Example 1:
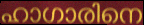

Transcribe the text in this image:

ഹാഗാരിനെ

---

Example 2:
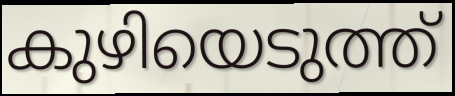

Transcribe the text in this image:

കുഴിയെടുത്ത്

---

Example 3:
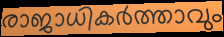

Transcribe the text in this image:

രാജാധികർത്താവും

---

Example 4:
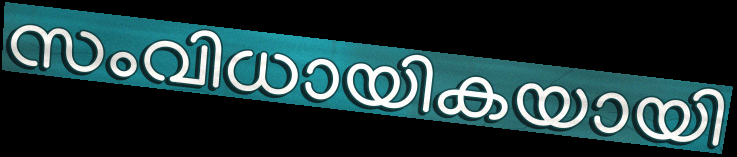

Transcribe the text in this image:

സംവിധായികയായി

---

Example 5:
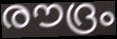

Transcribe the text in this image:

രൗദ്രം